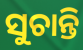
ସୁଚାନ୍ତି